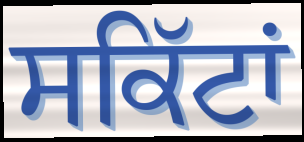
ਸਕਿੱਟਾਂ